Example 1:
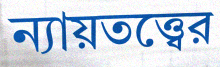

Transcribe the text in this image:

ন্যায়তত্ত্বের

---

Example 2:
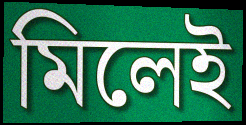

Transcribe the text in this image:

মিলেই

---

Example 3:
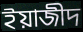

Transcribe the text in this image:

ইয়াজীদ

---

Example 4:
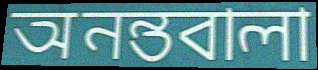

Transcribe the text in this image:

অনন্তবালা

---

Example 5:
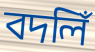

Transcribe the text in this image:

বদলিঁ